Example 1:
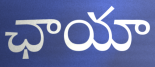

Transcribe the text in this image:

ఛాయా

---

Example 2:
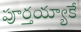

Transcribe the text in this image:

పూర్తయ్యాకే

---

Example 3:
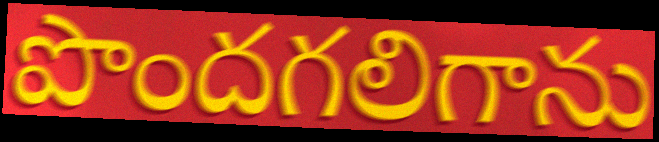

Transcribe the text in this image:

పొందగలిగాను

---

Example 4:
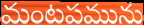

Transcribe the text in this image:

మంటపమును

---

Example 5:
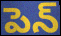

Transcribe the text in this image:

పెన్